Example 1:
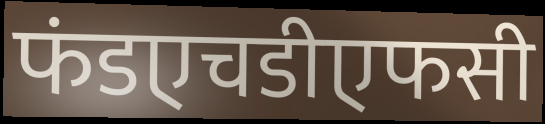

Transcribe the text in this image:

फंडएचडीएफसी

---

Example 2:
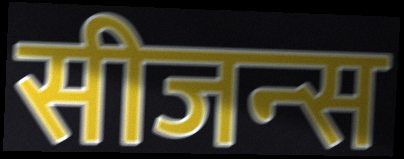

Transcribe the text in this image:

सीजन्स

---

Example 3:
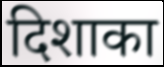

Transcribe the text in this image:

दिशाका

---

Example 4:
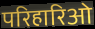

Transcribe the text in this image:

परिहारिओ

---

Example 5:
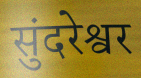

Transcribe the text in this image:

सुंदरेश्वर